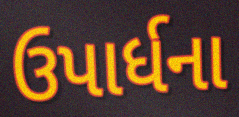
ઉપાર્ધના